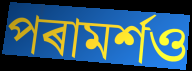
পৰামৰ্শও